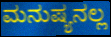
ಮನುಷ್ಯನಲ್ಲ